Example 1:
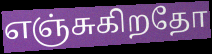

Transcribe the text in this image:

எஞ்சுகிறதோ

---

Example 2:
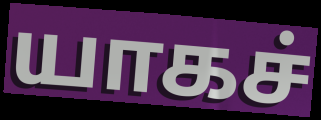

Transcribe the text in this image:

யாகச்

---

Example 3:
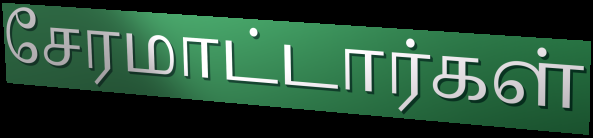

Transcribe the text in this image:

சேரமாட்டார்கள்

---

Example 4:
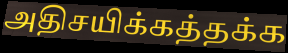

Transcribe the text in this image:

அதிசயிக்கத்தக்க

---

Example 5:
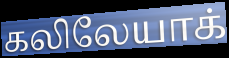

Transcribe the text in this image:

கலிலேயாக்